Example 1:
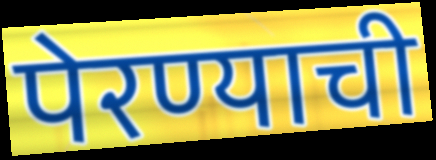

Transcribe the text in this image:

पेरण्याची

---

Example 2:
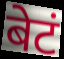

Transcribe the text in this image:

बेटं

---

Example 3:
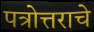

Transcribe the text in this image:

पत्रोत्तराचे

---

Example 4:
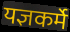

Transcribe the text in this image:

यज्ञकर्मे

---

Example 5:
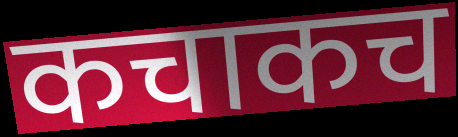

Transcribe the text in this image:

कचाकच